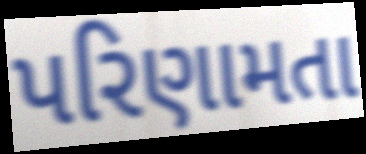
પરિણામતા